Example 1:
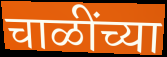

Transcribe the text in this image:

चाळींच्या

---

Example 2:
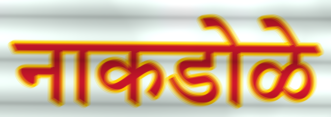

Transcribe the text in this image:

नाकडोळे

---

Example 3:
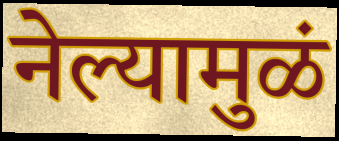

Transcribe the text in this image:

नेल्यामुळं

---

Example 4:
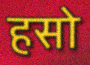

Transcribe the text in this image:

हसो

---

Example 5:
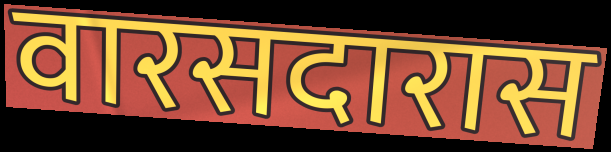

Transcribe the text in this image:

वारसदारास